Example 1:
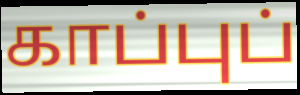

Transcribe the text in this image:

காப்புப்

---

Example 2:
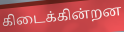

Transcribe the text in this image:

கிடைக்கின்றன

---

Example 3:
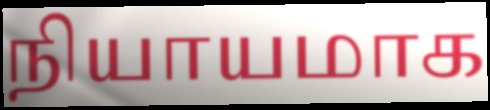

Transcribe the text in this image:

நியாயமாக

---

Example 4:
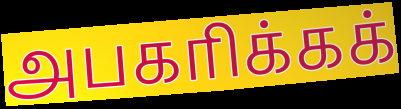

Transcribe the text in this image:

அபகரிக்கக்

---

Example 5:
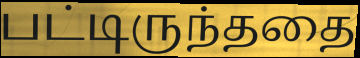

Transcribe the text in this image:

பட்டிருந்ததை